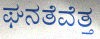
ಘನತೆವೆತ್ತ